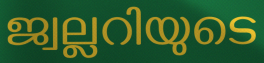
ജ്വല്ലറിയുടെ